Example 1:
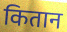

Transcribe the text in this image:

कितान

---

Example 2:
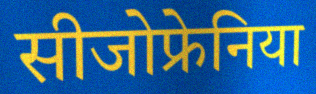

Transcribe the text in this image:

सीजोफ्रेनिया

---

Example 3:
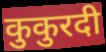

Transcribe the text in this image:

कुकुरदी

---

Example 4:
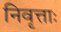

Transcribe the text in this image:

निवृत्ताः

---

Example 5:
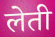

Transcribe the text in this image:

लेती